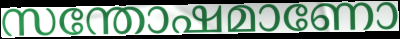
സന്തോഷമാണോ